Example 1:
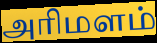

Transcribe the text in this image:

அரிமளம்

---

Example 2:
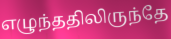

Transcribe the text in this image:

எழுந்ததிலிருந்தே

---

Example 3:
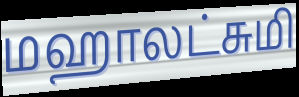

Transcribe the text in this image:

மஹாலட்சுமி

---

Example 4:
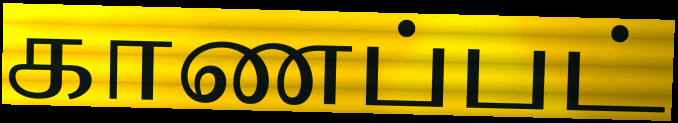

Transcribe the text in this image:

காணப்பட்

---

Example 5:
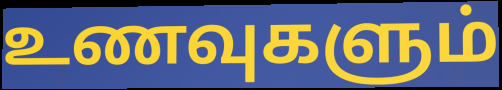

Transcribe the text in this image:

உணவுகளும்